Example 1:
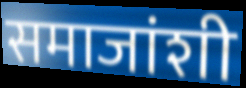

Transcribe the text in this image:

समाजांशी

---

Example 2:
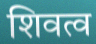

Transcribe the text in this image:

शिवत्व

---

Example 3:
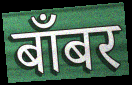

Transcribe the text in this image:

बाँबर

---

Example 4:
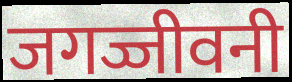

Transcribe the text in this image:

जगज्जीवनी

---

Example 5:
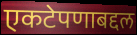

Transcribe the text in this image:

एकटेपणाबद्दल